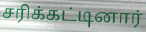
சரிக்கட்டினார்